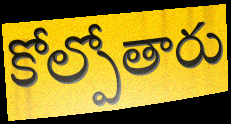
కోల్పోతారు